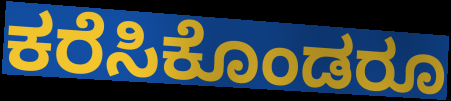
ಕರೆಸಿಕೊಂಡರೂ